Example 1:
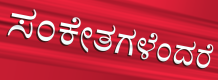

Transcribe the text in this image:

ಸಂಕೇತಗಳೆಂದರೆ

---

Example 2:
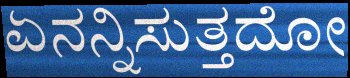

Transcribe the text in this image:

ಏನನ್ನಿಸುತ್ತದೋ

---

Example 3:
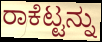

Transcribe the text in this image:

ರಾಕೆಟ್ಟನ್ನು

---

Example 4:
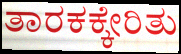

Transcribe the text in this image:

ತಾರಕಕ್ಕೇರಿತು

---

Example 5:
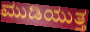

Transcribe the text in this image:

ಮುಡಿಯುತ್ತ